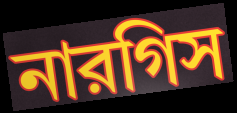
নারগিস